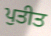
ਪੁਤੀਤ